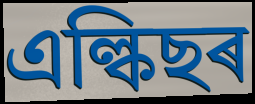
এল্কিছৰ